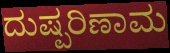
ದುಷ್ಪರಿಣಾಮ